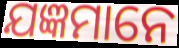
ଯଜ୍ଞମାନେ